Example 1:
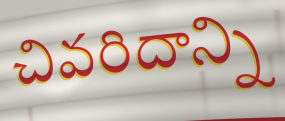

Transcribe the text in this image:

చివరిదాన్ని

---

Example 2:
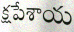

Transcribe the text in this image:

క్షపేశాయ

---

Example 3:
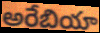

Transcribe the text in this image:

అరేబియా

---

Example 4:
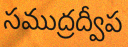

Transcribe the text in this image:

సముద్రద్వీప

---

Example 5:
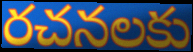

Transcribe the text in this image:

రచనలకు